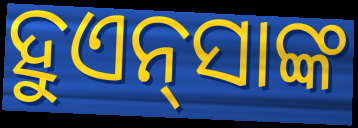
ହୁଏନ୍‍ସାଙ୍କ